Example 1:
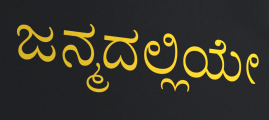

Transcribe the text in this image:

ಜನ್ಮದಲ್ಲಿಯೇ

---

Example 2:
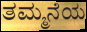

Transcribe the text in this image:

ತಮ್ಮನೆಯ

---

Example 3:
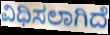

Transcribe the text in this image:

ವಿಧಿಸಲಾಗಿದೆ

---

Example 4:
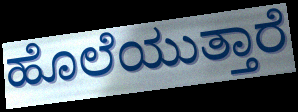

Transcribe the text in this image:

ಹೊಲೆಯುತ್ತಾರೆ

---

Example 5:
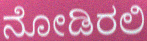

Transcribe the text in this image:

ನೋಡಿರಲಿ